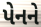
પેનને